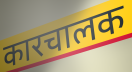
कारचालक